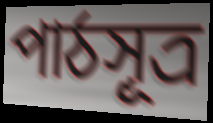
পাঠসূত্র